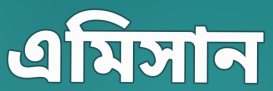
এমিসান